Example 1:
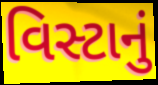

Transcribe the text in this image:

વિસ્ટાનું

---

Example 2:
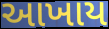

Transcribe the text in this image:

આખાય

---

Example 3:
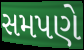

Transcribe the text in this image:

સમપણે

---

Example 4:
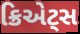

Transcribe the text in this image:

ક્રિએટ્સ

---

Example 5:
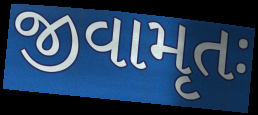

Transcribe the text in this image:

જીવામૃતઃ